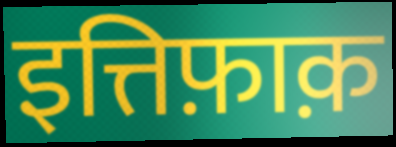
इत्तिफ़ाक़